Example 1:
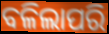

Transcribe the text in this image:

ବଳିଲାପରି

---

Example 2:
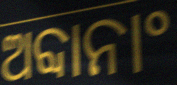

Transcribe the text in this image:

ଅବ୍ଦାନାଂ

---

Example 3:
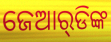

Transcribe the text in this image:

ଜେଆର୍‌ଡିଙ୍କ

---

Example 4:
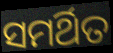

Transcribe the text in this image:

ସମର୍ଥିତ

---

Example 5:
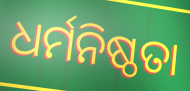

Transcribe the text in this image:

ଧର୍ମନିଷ୍ଠତା